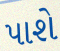
પાશે